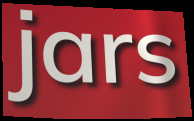
jars